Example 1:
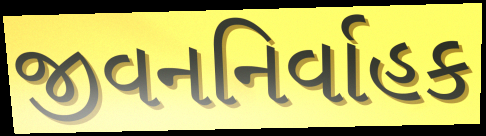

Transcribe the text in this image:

જીવનનિર્વાહક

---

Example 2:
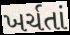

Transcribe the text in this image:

ખર્ચતાં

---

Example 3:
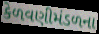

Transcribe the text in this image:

કેળવણીમંડળના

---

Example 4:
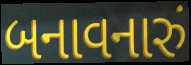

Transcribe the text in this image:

બનાવનારું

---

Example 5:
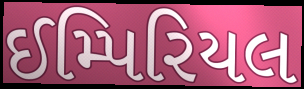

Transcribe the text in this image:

ઈમ્પિરિયલ